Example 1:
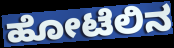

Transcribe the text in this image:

ಹೋಟೆಲಿನ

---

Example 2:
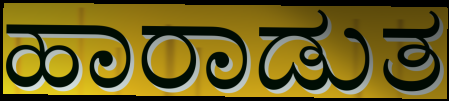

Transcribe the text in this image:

ಹಾರಾಡುತ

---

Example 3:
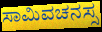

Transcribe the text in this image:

ಸಾಮಿವಚನಸ್ಸ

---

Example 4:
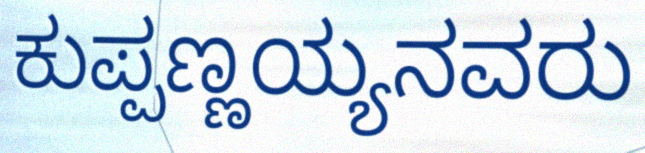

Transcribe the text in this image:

ಕುಪ್ಪಣ್ಣಯ್ಯನವರು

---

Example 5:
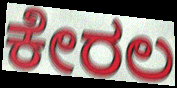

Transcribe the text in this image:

ಕೇರಲ